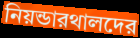
নিয়ন্ডারথালদের